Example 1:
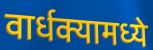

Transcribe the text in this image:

वार्धक्यामध्ये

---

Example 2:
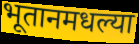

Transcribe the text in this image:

भूतानमधल्या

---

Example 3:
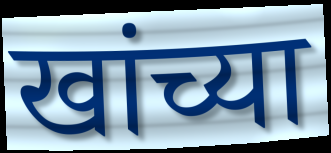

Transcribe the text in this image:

खांच्या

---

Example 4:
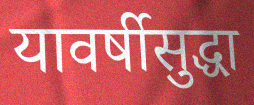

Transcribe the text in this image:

यावर्षीसुद्धा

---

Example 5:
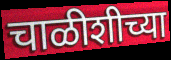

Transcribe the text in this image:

चाळीशीच्या